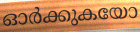
ഓർക്കുകയോ